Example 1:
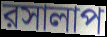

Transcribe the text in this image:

রসালাপ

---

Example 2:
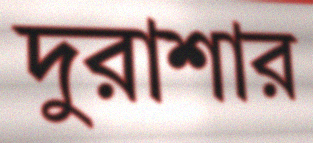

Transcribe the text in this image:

দুরাশার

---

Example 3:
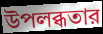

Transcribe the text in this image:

উপলব্ধতার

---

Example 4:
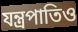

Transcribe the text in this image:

যন্ত্রপাতিও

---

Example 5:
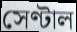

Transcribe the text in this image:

সেণ্টাল